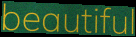
beautiful